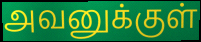
அவனுக்குள்